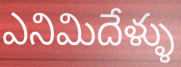
ఎనిమిదేళ్ళు